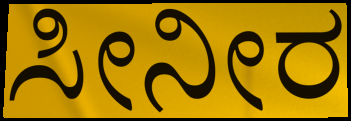
ಸೀನೀರ